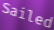
Sailed